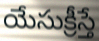
యేసుక్రీస్తే